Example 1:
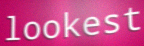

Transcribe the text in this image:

lookest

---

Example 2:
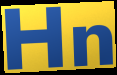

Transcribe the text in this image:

Hn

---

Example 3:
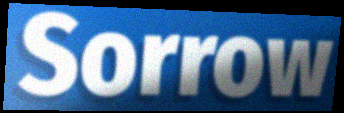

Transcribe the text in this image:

Sorrow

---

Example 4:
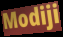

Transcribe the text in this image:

Modiji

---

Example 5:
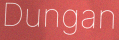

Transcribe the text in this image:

Dungan